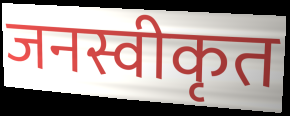
जनस्वीकृत